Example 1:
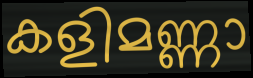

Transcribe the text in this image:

കളിമണ്ണാ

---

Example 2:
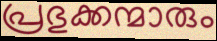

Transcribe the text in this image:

പ്രഭുക്കന്മാരും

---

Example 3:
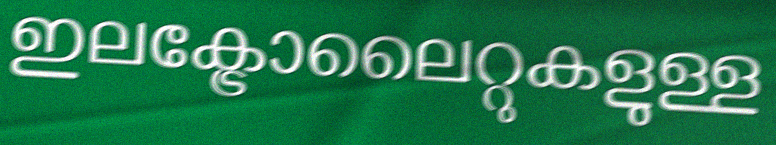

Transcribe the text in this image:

ഇലക്ട്രോലൈറ്റുകളുള്ള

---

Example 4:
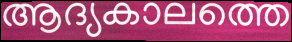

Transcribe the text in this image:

ആദ്യകാലത്തെ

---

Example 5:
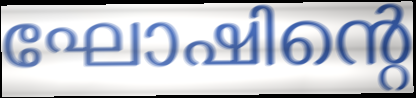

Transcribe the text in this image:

ഘോഷിന്റെ